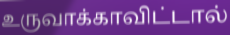
உருவாக்காவிட்டால்